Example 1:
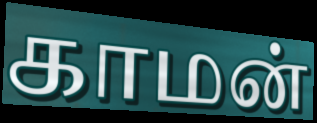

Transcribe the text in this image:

காமன்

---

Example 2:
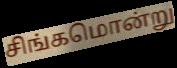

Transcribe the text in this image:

சிங்கமொன்று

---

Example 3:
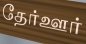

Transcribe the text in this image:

தேர்ஊர்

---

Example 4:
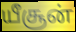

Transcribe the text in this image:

யீசூன்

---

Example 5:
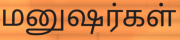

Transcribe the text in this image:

மனுஷர்கள்